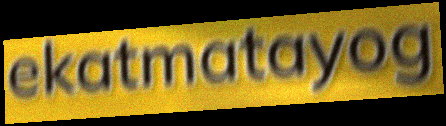
ekatmatayog